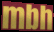
mbh